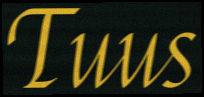
Tuus